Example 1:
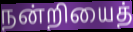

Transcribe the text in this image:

நன்றியைத்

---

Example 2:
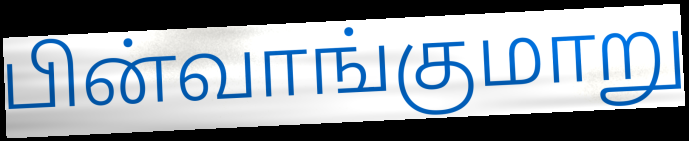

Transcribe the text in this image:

பின்வாங்குமாறு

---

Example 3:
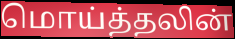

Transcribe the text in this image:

மொய்த்தலின்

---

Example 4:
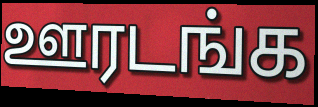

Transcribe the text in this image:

ஊரடங்க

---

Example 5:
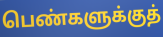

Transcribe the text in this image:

பெண்களுக்குத்